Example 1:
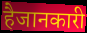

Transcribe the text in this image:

हैजानकारी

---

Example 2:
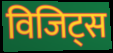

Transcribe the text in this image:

विजिट्स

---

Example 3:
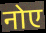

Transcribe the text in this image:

नोए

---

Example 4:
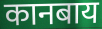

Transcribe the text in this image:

कानबाय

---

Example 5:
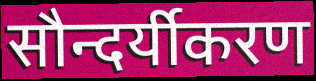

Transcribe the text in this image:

सौन्दर्यीकरण